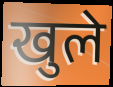
खुले